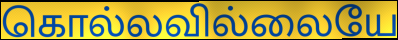
கொல்லவில்லையே